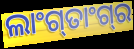
ଲାଂଗ୍‍ତାଂଗ୍‍ର